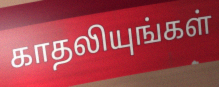
காதலியுங்கள்